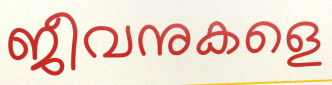
ജീവനുകളെ